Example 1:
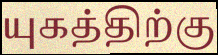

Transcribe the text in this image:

யுகத்திற்கு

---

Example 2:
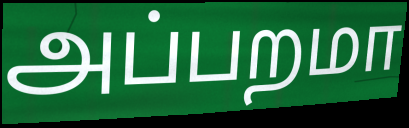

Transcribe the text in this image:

அப்பறமா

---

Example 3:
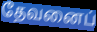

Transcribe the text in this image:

தேவனைப்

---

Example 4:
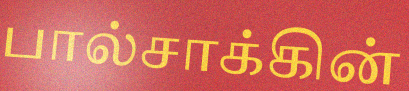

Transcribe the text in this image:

பால்சாக்கின்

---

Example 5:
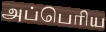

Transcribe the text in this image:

அப்பெரிய